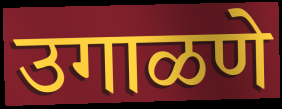
उगाळणे